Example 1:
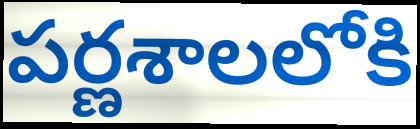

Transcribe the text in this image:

పర్ణశాలలోకి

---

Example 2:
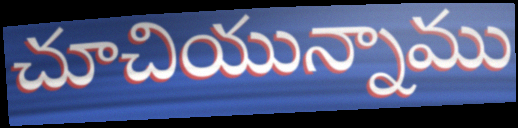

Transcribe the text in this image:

చూచియున్నాము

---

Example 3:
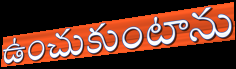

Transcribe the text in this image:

ఉంచుకుంటాను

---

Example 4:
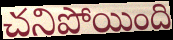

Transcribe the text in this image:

చనిపోయింది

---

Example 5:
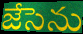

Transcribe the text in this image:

జేసెను